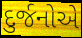
દુર્જનોએ